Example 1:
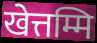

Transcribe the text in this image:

खेत्तम्मि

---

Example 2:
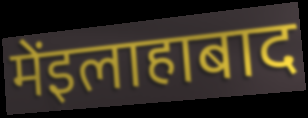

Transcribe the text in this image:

मेंइलाहाबाद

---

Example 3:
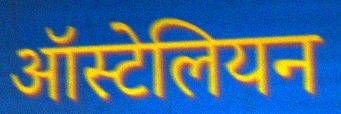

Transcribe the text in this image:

ऑस्टेलियन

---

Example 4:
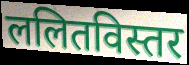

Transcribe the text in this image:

ललितविस्तर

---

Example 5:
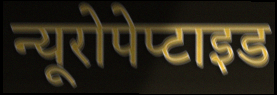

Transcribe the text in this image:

न्यूरोपेप्टाइड